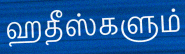
ஹதீஸ்களும்